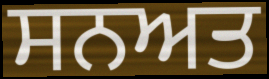
ਸਨਅਤ